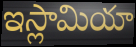
ఇస్లామియా